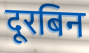
दूरबिन